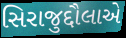
સિરાજુદ્દૌલાએ